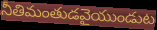
నీతిమంతుడవైయుండుట